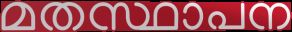
മതസ്ഥാപന